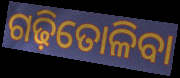
ଗଢ଼ିତୋଳିବା